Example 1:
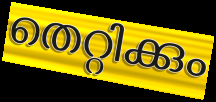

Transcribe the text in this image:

തെറ്റിക്കും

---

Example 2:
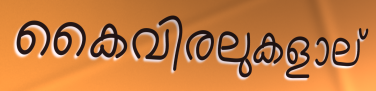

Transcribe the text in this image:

കൈവിരലുകളാല്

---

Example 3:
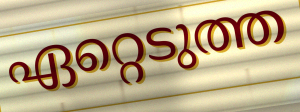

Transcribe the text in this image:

ഏറ്റെടുത്ത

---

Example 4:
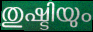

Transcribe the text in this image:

തുഷ്ടിയും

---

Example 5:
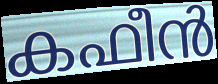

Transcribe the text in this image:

കഫീൻ